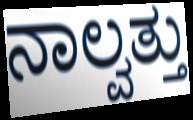
ನಾಲ್ವತ್ತು